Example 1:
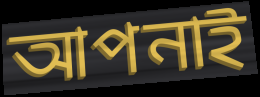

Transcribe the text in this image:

আপনাই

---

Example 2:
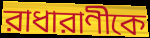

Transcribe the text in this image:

রাধারাণীকে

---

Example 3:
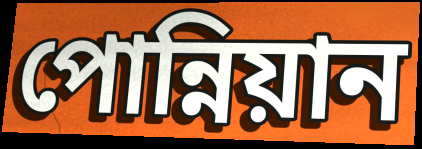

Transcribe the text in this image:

পোন্নিয়ান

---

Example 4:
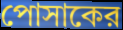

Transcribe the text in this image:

পোসাকের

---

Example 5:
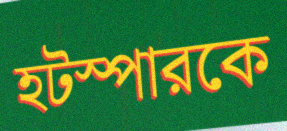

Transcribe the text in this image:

হটস্পারকে